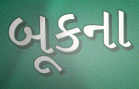
બૂકના